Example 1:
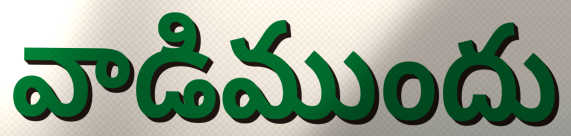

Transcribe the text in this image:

వాడిముందు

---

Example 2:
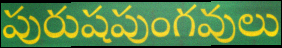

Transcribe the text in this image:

పురుషపుంగవులు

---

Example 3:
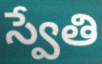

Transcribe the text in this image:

స్వేతి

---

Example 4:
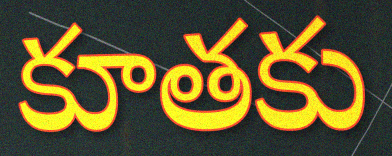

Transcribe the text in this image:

కూతకు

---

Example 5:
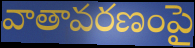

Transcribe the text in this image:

వాతావరణంపై